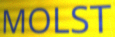
MOLST